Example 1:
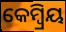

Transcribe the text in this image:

କେମ୍ବ୍ରିୟ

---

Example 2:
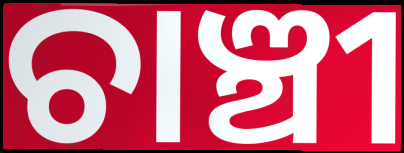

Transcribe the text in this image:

ଚାଞ୍ଚୀ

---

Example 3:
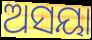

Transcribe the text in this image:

ଅସୟା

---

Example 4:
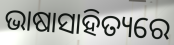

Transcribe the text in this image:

ଭାଷାସାହିତ୍ୟରେ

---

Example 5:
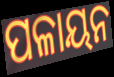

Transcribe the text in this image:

ପଳାୟନ